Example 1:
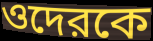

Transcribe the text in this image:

ওদেরকে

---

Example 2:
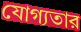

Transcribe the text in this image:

যোগ্যতার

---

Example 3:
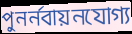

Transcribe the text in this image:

পুনর্নবায়নযোগ্য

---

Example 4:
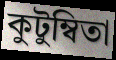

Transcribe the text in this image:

কুটুম্বিতা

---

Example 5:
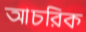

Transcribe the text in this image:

আচরিক